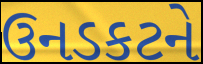
ઉનડકટને